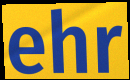
ehr